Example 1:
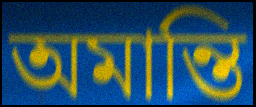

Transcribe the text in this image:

অমান্তি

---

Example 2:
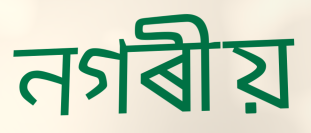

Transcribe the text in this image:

নগৰীয়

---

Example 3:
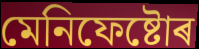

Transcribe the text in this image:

মেনিফেষ্টোৰ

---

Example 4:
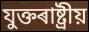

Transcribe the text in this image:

যুক্তৰাষ্ট্ৰীয়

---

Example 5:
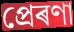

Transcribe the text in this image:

প্ৰেৰণা